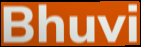
Bhuvi